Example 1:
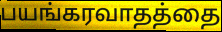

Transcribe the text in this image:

பயங்கரவாதத்தை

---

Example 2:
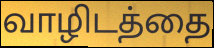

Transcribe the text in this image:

வாழிடத்தை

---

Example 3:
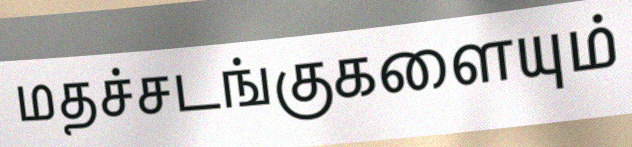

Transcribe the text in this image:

மதச்சடங்குகளையும்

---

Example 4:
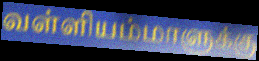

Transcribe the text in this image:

வள்ளியம்மாளுக்கு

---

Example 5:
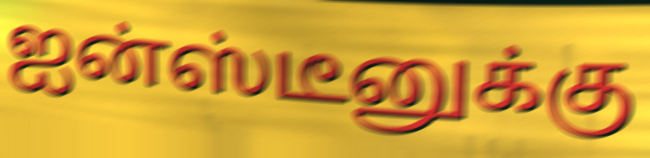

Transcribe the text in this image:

ஐன்ஸ்டீனுக்கு